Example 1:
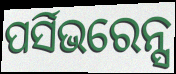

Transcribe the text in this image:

ପର୍ସିଭରେନ୍ସ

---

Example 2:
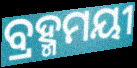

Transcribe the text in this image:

ବ୍ରହ୍ମମୟୀ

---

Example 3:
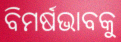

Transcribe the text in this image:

ବିମର୍ଷଭାବକୁ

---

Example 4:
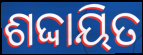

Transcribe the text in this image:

ଶଦ୍ଦାୟିତ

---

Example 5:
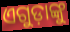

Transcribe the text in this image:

ଏଗୁଡ଼ାଙ୍କୁ